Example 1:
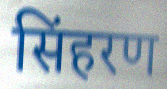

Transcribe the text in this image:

सिंहरण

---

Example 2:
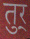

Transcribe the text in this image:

तुर्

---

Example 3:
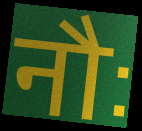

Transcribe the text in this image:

नौः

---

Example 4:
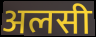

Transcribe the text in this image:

अलसी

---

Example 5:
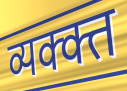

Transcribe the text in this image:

व्यक्क्त